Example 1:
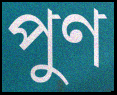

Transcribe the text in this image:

পুণ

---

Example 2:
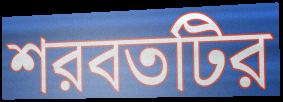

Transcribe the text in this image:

শরবতটির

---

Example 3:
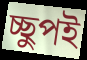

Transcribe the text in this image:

চ্ছুপই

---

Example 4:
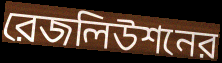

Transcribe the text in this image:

রেজলিউশনের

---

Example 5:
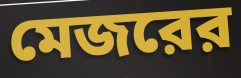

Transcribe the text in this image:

মেজরের